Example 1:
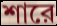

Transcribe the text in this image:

শারে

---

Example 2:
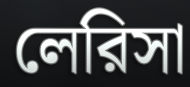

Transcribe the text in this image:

লেরিসা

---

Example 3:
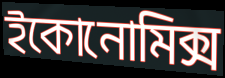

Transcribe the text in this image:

ইকোনোমিক্স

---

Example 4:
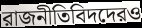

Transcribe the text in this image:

রাজনীতিবিদদেরও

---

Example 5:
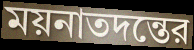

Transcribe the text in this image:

ময়নাতদন্তের